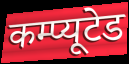
कम्प्यूटेड